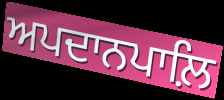
ਅਪਦਾਨਪਾਲ਼ਿ